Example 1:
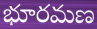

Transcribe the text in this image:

భూరమణ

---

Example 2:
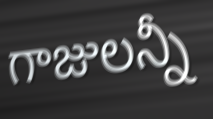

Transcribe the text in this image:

గాజులన్నీ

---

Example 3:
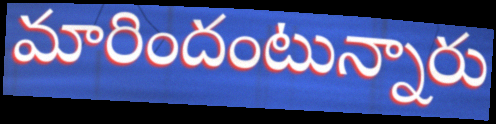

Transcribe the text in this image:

మారిందంటున్నారు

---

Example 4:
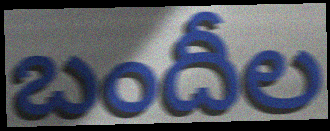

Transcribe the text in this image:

బందీల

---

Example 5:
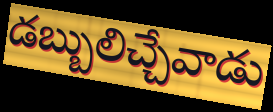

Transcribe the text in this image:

డబ్బులిచ్చేవాడు